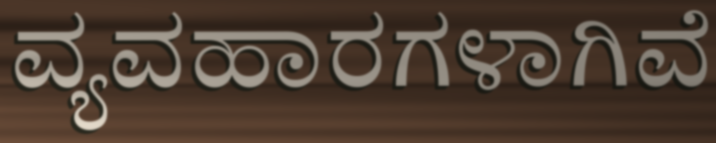
ವ್ಯವಹಾರಗಳಾಗಿವೆ